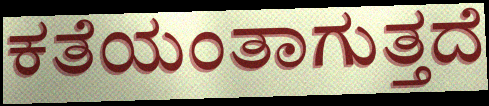
ಕತೆಯಂತಾಗುತ್ತದೆ